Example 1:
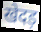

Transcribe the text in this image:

खेदड़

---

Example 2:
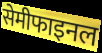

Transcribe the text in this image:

सेमीफाइनल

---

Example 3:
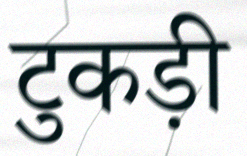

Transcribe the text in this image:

टुकड़ी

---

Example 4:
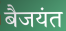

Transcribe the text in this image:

बैजयंत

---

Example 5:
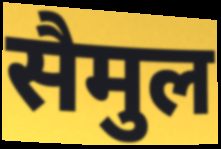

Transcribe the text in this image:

सैमुल